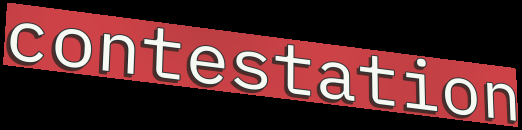
contestation